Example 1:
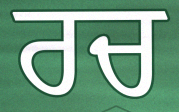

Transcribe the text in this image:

ਰਚ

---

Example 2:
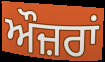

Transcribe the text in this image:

ਔਜ਼ਰਾਂ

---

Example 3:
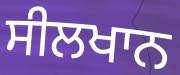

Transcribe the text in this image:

ਸੀਲਖਾਨ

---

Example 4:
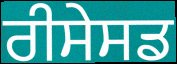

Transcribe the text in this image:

ਰੀਸੇਸਡ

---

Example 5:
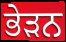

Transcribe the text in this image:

ਭੇੜਨ